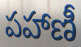
పహాణీ